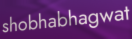
shobhabhagwat